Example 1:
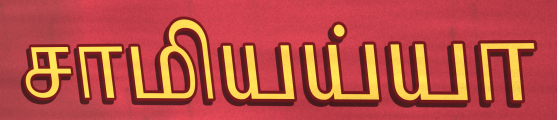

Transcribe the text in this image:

சாமியய்யா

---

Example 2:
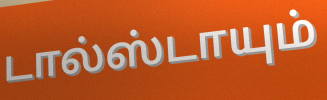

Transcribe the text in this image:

டால்ஸ்டாயும்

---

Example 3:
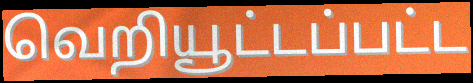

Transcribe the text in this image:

வெறியூட்டப்பட்ட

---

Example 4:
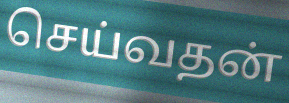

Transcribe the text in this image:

செய்வதன்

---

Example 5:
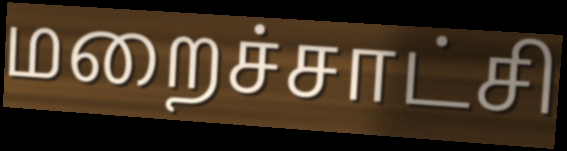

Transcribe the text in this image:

மறைச்சாட்சி